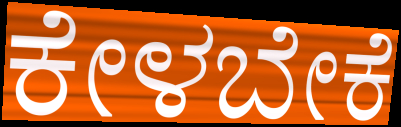
ಕೇಳಬೇಕೆ